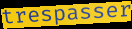
trespasser